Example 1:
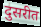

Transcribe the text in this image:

दुसरीत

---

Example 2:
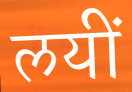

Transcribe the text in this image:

लयीं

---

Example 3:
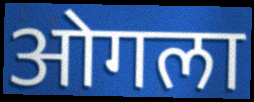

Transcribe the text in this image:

ओगला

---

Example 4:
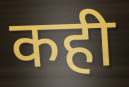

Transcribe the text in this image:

कही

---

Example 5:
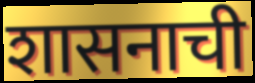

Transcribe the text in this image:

शासनाची